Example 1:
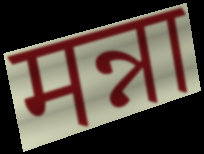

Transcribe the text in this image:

मन्ना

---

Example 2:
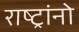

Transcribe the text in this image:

राष्ट्रांनो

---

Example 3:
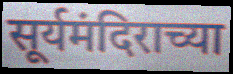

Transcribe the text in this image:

सूर्यमंदिराच्या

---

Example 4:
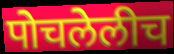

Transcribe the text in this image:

पोचलेलीच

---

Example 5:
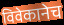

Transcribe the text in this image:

विवेकानेच